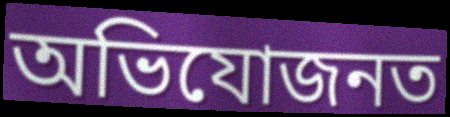
অভিযোজনত